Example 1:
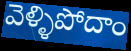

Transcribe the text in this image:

వెళ్ళిపోదాం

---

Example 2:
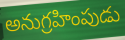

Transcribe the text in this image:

అనుగ్రహింపుడు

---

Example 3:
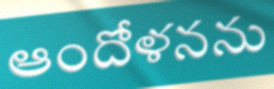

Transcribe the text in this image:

ఆందోళనను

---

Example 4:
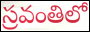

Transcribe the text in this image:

స్రవంతిలో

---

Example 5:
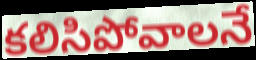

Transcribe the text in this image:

కలిసిపోవాలనే